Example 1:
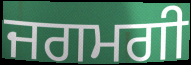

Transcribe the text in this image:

ਜਗਮਗੀ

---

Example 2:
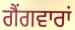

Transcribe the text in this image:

ਗੈਂਗਵਾਰਾਂ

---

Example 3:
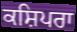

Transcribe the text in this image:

ਕਸ਼ਿਪਰਾ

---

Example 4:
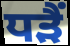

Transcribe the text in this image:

ਧੜੈਂ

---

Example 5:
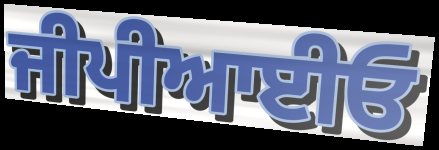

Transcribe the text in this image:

ਜੀਪੀਆਈਓ